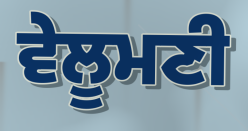
ਵੇਲੂਮਣੀ